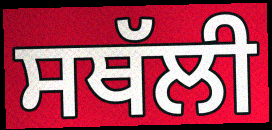
ਸਥੱਲੀ